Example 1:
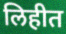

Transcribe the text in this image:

लिहीत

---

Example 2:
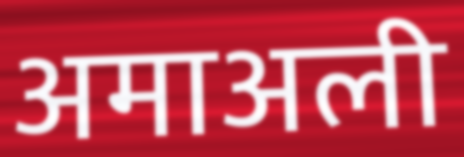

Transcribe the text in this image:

अमाअली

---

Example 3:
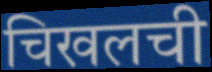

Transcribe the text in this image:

चिखलची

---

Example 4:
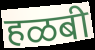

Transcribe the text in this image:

हळबी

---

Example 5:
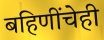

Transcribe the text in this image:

बहिणींचेही